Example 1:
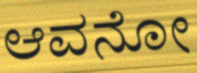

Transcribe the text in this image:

ಆವನೋ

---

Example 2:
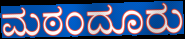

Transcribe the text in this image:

ಮಠಂದೂರು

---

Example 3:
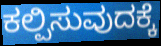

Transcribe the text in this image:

ಕಲ್ಪಿಸುವುದಕ್ಕೆ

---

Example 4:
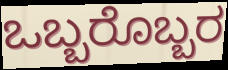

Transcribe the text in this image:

ಒಬ್ಬರೊಬ್ಬರ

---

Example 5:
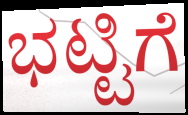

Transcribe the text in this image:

ಭಟ್ಟಿಗೆ